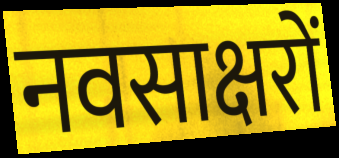
नवसाक्षरों